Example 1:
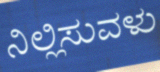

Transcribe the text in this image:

ನಿಲ್ಲಿಸುವಳು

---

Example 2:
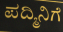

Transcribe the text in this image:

ಪದ್ಮಿನಿಗೆ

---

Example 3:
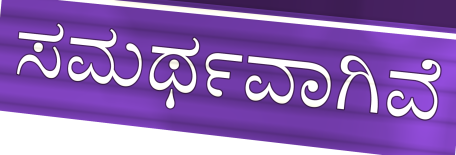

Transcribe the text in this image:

ಸಮರ್ಥವಾಗಿವೆ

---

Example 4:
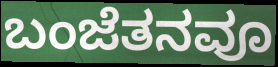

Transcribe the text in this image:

ಬಂಜೆತನವೂ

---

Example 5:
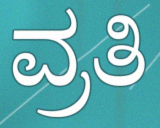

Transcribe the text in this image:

ವ್ರತಿ